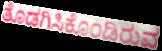
ತೊಡಗಿಸಿಕೊಂಡಿರುವ